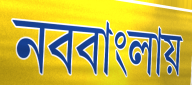
নববাংলায়